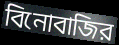
বিনোবাজির